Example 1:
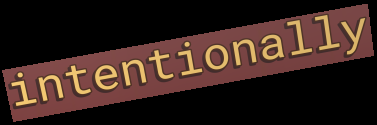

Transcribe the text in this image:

intentionally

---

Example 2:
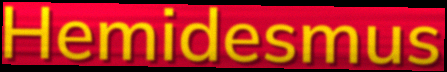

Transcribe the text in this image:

Hemidesmus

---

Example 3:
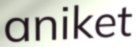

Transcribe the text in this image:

aniket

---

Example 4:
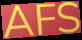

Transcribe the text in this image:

AFS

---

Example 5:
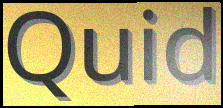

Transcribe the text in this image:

Quid